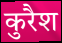
कुरैश